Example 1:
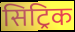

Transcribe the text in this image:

सिट्रिक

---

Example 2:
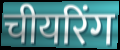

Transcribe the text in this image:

चीयरिंग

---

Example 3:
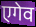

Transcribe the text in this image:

एगेव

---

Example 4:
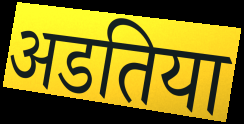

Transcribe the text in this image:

अडतिया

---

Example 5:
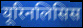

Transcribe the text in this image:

यूरिनलिसिस